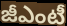
జీఎంటీ